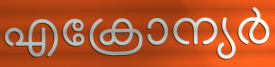
എക്രോന്യർ